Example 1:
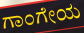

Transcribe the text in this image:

ಗಾಂಗೇಯ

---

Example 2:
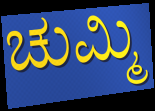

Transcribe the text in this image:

ಚುಮ್ಮಿ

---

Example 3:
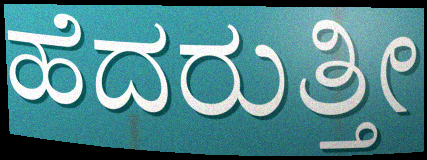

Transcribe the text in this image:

ಹೆದರುತ್ತೀ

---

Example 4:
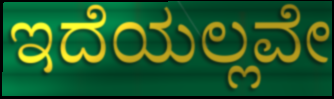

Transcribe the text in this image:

ಇದೆಯಲ್ಲವೇ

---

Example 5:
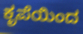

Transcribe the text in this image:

ಕೃಪೆಯಿಂದ